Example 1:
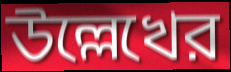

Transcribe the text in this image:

উল্লেখের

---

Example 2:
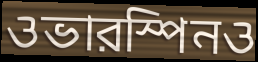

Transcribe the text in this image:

ওভারস্পিনও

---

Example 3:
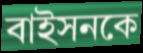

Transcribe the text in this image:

বাইসনকে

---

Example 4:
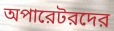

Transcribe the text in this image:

অপারেটরদের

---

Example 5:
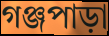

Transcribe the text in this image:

গঞ্জপাড়া